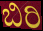
ಬಿರಿ